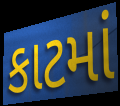
કાટમાં